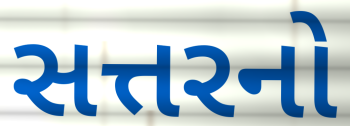
સત્તરનો